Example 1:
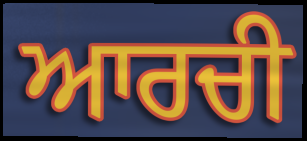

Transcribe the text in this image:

ਆਰਚੀ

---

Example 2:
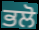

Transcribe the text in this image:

ਭਲੋ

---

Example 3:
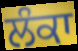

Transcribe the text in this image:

ਲੰਕਾ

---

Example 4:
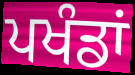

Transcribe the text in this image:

ਪਖੰਡਾਂ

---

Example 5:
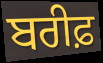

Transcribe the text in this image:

ਬਰੀਫ਼